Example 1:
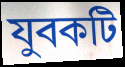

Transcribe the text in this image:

যুবকটি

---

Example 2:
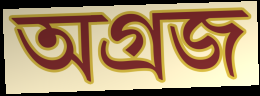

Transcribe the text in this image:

অগ্রজ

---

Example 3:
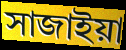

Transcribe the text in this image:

সাজাইয়া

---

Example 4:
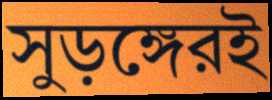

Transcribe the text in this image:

সুড়ঙ্গেরই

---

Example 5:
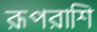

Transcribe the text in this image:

রূপরাশি